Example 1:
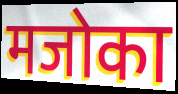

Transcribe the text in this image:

मजोका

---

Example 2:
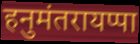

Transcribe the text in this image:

हनुमंतरायप्पा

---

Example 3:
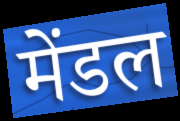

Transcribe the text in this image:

मेंडल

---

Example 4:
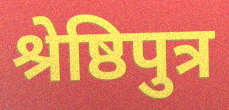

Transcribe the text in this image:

श्रेष्ठिपुत्र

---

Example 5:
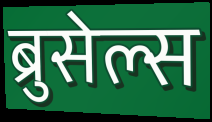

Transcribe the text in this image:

ब्रुसेल्स